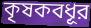
কৃষকবধূর